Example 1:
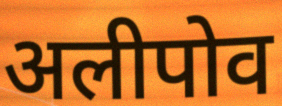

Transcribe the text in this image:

अलीपोव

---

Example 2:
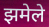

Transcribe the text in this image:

झमेले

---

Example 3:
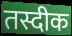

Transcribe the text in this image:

तस्दीक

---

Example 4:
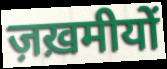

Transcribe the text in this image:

ज़ख़मीयों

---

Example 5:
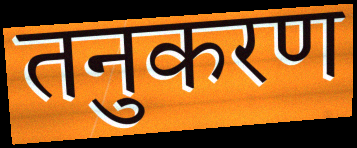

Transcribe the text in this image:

तनुकरण